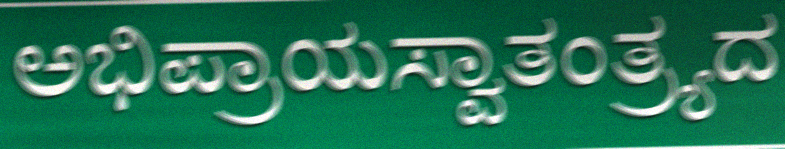
ಅಭಿಪ್ರಾಯಸ್ವಾತಂತ್ರ್ಯದ